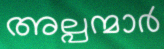
അല്പന്മാർ